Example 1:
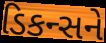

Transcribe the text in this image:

ડિકન્સને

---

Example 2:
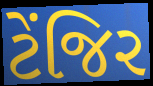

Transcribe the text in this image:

ટેંજિર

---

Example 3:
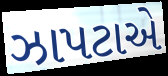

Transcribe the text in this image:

ઝાપટાએ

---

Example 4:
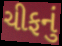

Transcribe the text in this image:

ચીફનું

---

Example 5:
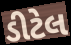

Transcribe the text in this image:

ડીટેલ